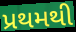
પ્રથમથી